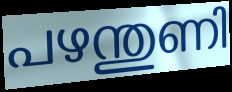
പഴന്തുണി